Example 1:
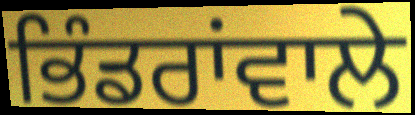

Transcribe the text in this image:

ਭਿੰਡਰਾਂਵਾਲੇ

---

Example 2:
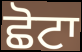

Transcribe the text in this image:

ਛੋਟਾ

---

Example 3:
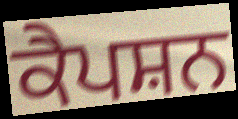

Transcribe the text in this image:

ਕੈਪਸ਼ਨ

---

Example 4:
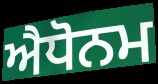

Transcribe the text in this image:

ਐਧੋਨਮ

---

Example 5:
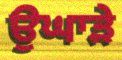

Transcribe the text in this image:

ਉਘਾੜੇ